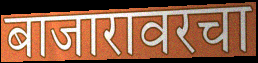
बाजारावरचा